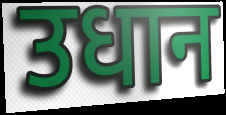
उधान